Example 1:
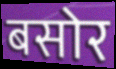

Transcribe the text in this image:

बसोर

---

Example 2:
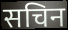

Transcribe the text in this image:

सचिन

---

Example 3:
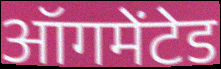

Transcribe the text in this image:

ऑगमेंटेड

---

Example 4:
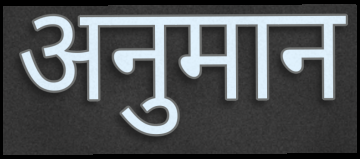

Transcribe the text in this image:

अनुमान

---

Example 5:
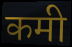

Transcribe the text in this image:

कमी